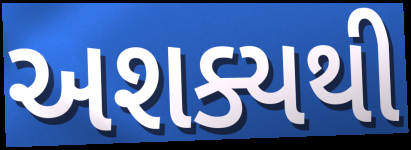
અશક્યથી